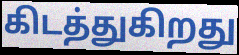
கிடத்துகிறது